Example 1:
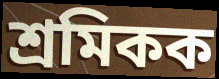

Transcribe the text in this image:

শ্ৰমিকক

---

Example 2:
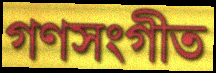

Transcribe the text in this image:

গণসংগীত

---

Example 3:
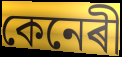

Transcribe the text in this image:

কেনেৰী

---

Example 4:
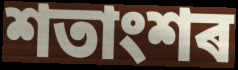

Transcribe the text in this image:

শতাংশৰ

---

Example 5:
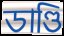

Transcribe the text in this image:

ডাণ্ডি